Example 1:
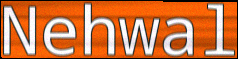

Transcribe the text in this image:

Nehwal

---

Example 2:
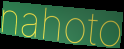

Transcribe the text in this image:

nahoto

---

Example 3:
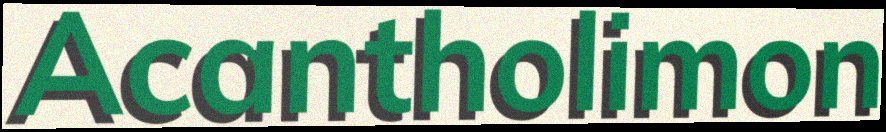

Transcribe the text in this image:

Acantholimon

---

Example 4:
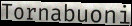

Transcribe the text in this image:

Tornabuoni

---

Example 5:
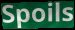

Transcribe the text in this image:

Spoils